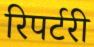
रिपर्टरी